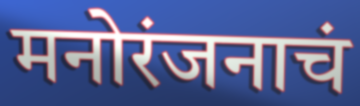
मनोरंजनाचं